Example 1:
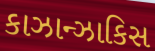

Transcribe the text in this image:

કાઝાન્ઝાકિસ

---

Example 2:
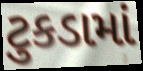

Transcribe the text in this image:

ટુકડામાં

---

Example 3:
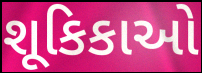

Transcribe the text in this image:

શૂકિકાઓ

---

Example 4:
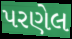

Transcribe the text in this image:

પરણેલ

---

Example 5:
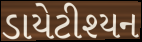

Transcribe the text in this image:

ડાયેટીશ્યન